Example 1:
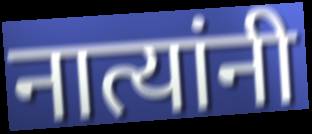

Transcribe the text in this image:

नात्यांनी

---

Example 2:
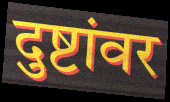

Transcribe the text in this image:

दुष्टांवर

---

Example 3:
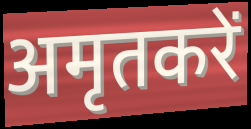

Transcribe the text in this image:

अमृतकरें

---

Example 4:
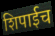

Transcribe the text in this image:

शिपाईच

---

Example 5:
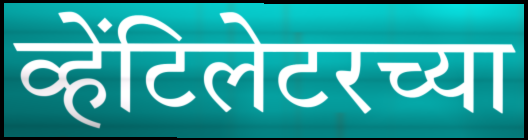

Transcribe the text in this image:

व्हेंटिलेटरच्या